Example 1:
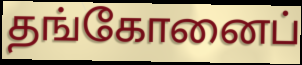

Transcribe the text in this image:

தங்கோனைப்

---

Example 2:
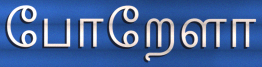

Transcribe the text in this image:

போறேளா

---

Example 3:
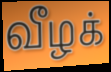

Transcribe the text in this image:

வீழக்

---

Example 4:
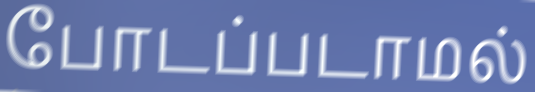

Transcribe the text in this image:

போடப்படாமல்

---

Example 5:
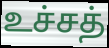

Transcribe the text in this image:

உச்சத்